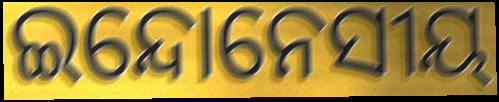
ଇନ୍ଦୋନେସୀୟ